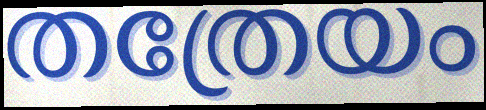
തത്രേയം